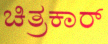
ಚಿತ್ರಕಾರ್